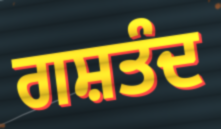
ਗਸ਼ਤੰਦ